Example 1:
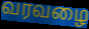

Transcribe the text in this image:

வரவழை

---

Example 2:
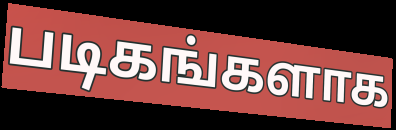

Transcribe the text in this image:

படிகங்களாக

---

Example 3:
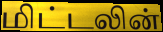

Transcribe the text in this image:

மிட்டலின்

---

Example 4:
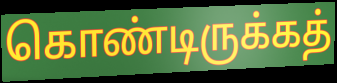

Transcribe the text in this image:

கொண்டிருக்கத்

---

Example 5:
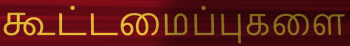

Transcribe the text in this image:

கூட்டமைப்புகளை